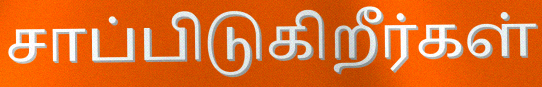
சாப்பிடுகிறீர்கள்